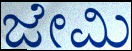
ಜೇಮಿ